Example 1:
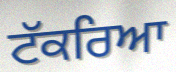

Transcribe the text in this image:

ਟੱਕਰਿਆ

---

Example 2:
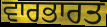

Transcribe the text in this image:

ਵਾਰਭਾਰਤ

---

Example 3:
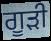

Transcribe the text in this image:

ਗੂੜੀ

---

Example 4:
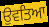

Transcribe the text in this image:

ਉਵਤਿਆ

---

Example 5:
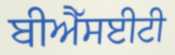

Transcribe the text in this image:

ਬੀਐੱਸਈਟੀ